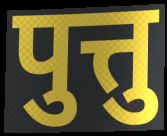
पुत्तु